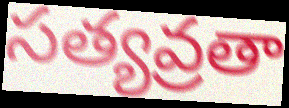
సత్యవ్రతా